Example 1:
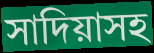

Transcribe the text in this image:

সাদিয়াসহ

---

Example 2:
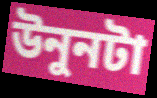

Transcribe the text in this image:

উনুনটা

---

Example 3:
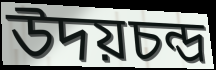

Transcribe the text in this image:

উদয়চন্দ্র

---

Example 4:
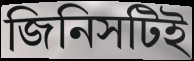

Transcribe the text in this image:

জিনিসটিই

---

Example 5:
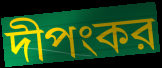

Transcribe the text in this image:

দীপংকর